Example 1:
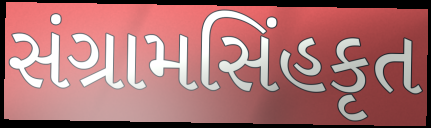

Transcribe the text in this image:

સંગ્રામસિંહકૃત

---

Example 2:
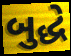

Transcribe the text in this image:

બુદ્ધે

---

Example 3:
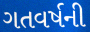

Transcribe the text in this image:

ગતવર્ષની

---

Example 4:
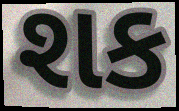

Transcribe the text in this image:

શક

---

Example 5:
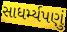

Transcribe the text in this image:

સાધર્મ્યપણું